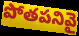
పోతపనివై